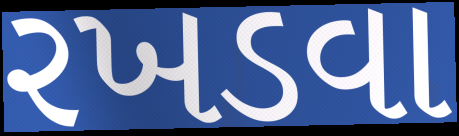
રખડવા